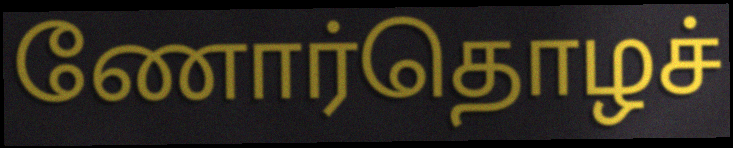
ணோர்தொழச்